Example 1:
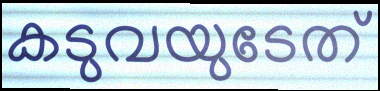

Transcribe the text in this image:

കടുവയുടേത്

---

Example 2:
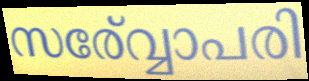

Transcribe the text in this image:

സര്വ്വോപരി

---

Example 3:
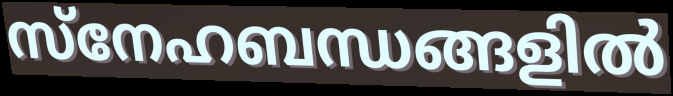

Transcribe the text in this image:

സ്നേഹബന്ധങ്ങളിൽ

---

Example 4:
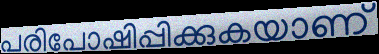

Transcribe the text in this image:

പരിപോഷിപ്പിക്കുകയാണ്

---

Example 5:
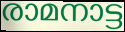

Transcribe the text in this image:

രാമനാട്ട